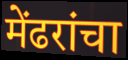
मेंढरांचा